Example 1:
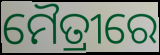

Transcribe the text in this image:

ମୈତ୍ରୀରେ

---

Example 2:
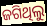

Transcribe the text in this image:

ଜଗିଥିଲୁ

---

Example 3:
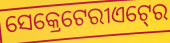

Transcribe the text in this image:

ସେକ୍ରେଟେରୀଏଟ୍‍ରେ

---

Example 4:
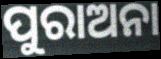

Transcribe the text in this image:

ପୁରାଅନା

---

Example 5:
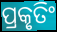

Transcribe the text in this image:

ପ୍ରକୃତିଂ